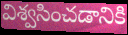
విశ్వసించడానికి